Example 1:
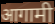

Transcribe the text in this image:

आगामी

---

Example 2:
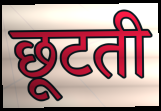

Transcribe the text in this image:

छूटती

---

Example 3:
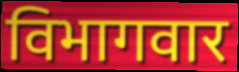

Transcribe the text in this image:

विभागवार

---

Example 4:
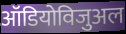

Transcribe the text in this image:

ऑडियोविजुअल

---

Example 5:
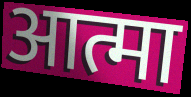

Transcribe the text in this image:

आत्मा